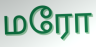
மரோ